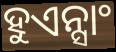
ହୁଏନ୍ସାଂ